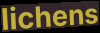
lichens